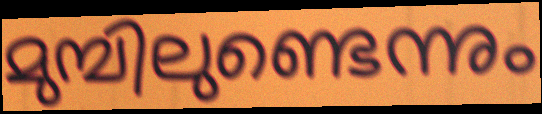
മുമ്പിലുണ്ടെന്നും